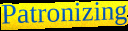
Patronizing